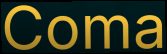
Coma